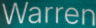
Warren